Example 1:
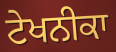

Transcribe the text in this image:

ਟੇਖਨੀਕਾ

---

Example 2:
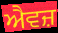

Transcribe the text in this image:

ਐਵਜ਼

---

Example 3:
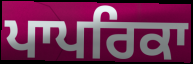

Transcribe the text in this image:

ਪਾਪਰਿਕਾ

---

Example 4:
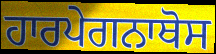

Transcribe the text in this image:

ਹਾਰਪੇਗਨਾਥੋਸ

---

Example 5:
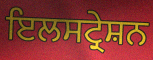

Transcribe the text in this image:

ਇਲਸਟ੍ਰੇਸ਼ਨ